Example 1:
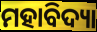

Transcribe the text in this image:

ମହାବିଦ୍ୟା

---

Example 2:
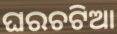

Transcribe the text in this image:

ଘରଚଟିଆ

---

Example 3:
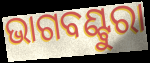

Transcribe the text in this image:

ଭାଗବଣ୍ଟୁରା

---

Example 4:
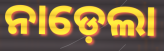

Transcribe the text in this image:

ନାଡ଼େଲା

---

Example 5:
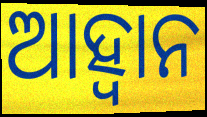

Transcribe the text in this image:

ଆହ୍ୱାନ